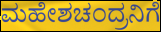
ಮಹೇಶಚಂದ್ರನಿಗೆ